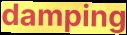
damping